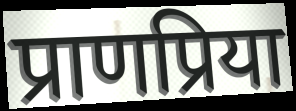
प्राणप्रिया